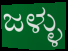
ಜಳ್ಳು